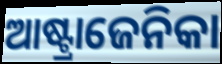
ଆଷ୍ଟ୍ରାଜେନିକା